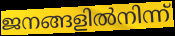
ജനങ്ങളിൽനിന്ന്